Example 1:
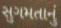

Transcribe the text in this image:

સુગમતાનું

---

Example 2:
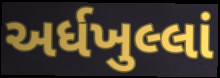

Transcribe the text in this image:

અર્ધખુલ્લાં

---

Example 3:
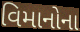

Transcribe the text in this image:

વિમાનોના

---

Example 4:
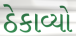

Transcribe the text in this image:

ઠેકાવ્યો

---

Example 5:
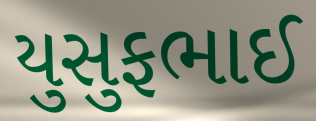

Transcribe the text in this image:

યુસુફભાઈ